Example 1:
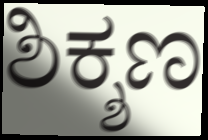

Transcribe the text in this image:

ಶಿಕ್ಶಣ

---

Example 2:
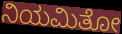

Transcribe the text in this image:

ನಿಯಮಿತೋ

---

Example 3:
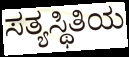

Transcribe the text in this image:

ಸತ್ಯಸ್ಥಿತಿಯ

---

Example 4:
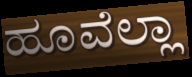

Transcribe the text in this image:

ಹೂವೆಲ್ಲಾ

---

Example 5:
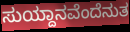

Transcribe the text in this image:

ಸುಯ್ದಾನವೆಂದೆನುತ